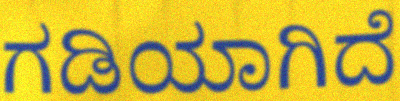
ಗಡಿಯಾಗಿದೆ